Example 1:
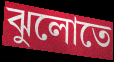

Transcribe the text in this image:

ঝুলোতে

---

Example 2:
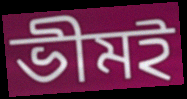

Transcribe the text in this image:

ভীমই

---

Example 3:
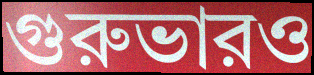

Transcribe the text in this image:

গুরুভারও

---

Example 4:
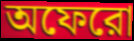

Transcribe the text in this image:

অফেরো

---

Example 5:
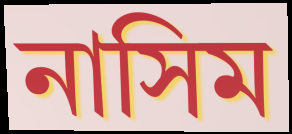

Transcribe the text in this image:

নাসিম